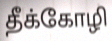
தீக்கோழி